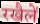
रखैलें